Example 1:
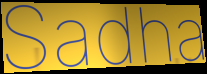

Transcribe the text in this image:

Sadha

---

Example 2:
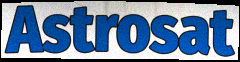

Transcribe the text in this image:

Astrosat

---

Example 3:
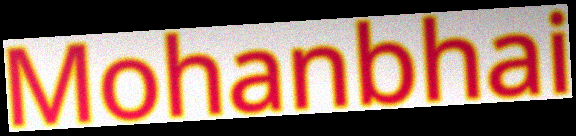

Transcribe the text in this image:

Mohanbhai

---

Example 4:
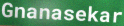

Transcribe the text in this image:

Gnanasekar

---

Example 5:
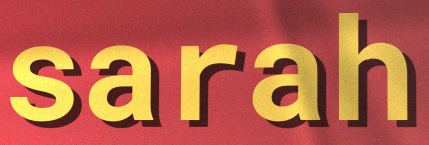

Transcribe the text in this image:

sarah